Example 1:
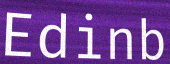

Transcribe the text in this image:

Edinb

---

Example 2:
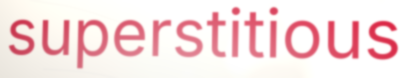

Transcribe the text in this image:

superstitious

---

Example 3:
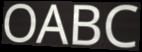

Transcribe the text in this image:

OABC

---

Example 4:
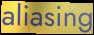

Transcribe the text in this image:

aliasing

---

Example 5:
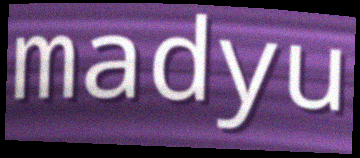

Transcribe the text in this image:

madyu